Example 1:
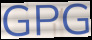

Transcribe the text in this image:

GPG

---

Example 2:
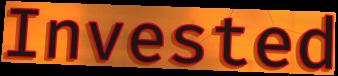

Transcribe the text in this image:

Invested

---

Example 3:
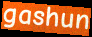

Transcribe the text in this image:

gashun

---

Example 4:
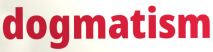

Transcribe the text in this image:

dogmatism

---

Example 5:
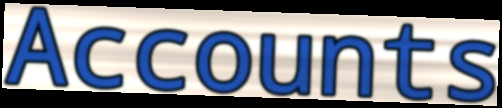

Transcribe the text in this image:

Accounts